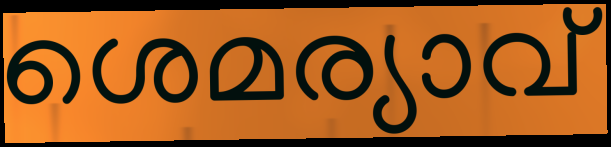
ശെമര്യാവ്